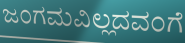
ಜಂಗಮವಿಲ್ಲದವಂಗೆ